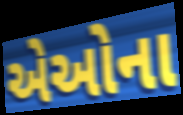
એઓના